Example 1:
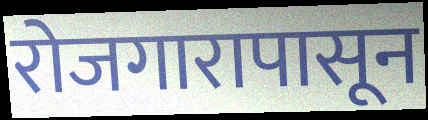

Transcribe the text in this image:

रोजगारापासून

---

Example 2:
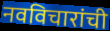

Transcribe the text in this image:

नवविचारांची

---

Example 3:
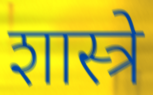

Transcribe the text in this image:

शास्त्रे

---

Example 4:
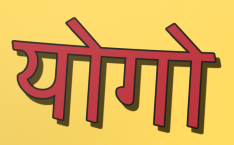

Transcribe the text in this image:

योगो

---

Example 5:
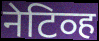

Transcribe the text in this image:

नेटिव्ह